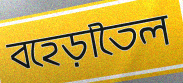
বহেড়াতৈল